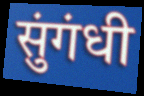
सुंगंधी